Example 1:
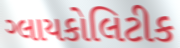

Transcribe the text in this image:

ગ્લાયકોલિટીક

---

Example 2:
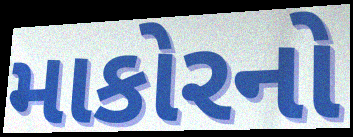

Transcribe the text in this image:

માકોરનો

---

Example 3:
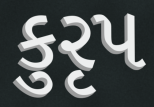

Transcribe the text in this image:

કુરૃપ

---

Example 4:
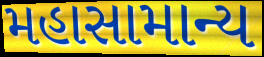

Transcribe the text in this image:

મહાસામાન્ય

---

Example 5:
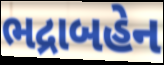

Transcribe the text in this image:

ભદ્રાબહેન